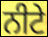
ਨੀਟੇ